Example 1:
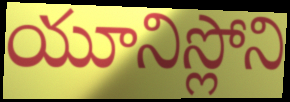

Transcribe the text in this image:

యూనిస్లోని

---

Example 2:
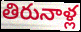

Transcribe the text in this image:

తిరునాళ్ల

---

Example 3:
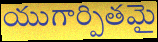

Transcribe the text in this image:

యుగార్పితమై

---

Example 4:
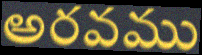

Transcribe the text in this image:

అరవము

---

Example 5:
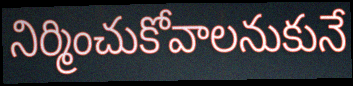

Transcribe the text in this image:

నిర్మించుకోవాలనుకునే